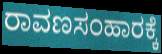
ರಾವಣಸಂಹಾರಕ್ಕೆ